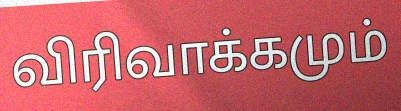
விரிவாக்கமும்